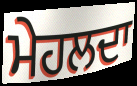
ਮੇਹਲਦਾ